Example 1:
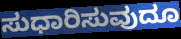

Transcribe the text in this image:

ಸುಧಾರಿಸುವುದೂ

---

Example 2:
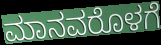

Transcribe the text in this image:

ಮಾನವರೊಳಗೆ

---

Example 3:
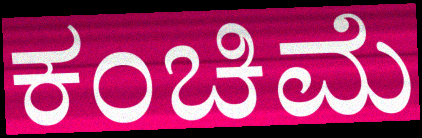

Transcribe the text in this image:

ಕಂಚಿಮೆ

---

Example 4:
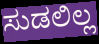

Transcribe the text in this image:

ಸುಡಲಿಲ್ಲ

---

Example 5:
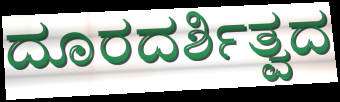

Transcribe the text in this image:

ದೂರದರ್ಶಿತ್ವದ